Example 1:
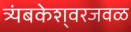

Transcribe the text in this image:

त्र्यंबकेश्वरजवळ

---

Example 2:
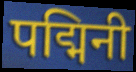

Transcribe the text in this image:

पद्मिनी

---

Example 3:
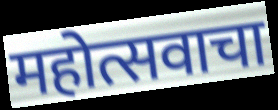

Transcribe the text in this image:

महोत्सवाचा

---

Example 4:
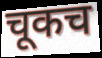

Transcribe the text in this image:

चूकच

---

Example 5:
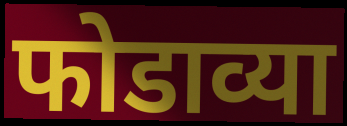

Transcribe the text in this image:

फोडाव्या